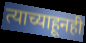
त्याच्याहूनही